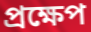
প্রক্ষেপ